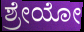
ಶ್ರೇಯೋ